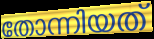
തോന്നിയത്